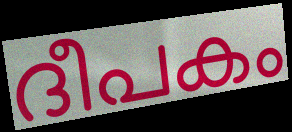
ദീപകം